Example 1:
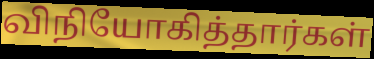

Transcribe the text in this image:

விநியோகித்தார்கள்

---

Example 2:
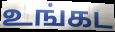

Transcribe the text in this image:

உங்கட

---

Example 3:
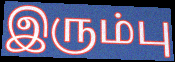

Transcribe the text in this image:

இரும்பு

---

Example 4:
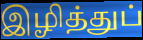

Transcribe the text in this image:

இழித்துப்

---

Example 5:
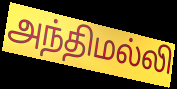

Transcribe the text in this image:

அந்திமல்லி